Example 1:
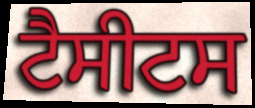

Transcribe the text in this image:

ਟੈਸੀਟਸ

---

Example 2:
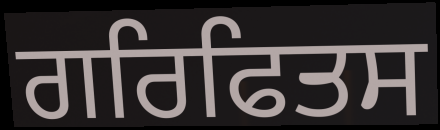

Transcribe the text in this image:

ਗਰਿਫਿਤਸ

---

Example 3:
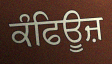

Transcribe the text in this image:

ਕੰਫਿਊਜ਼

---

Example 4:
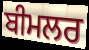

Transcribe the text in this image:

ਬੀਮਲਰ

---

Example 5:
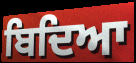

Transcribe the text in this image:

ਬਿਦਿਆ